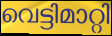
വെട്ടിമാറ്റി